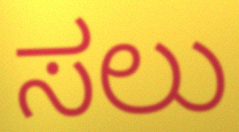
ಸಲು